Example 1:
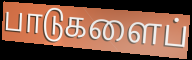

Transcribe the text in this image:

பாடுகளைப்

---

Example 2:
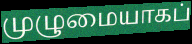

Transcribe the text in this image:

முழுமையாகப்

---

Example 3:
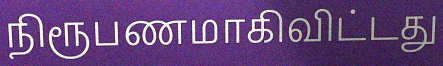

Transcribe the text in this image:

நிரூபணமாகிவிட்டது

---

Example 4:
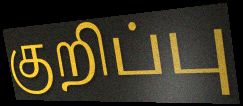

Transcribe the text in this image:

குறிப்பு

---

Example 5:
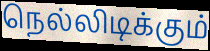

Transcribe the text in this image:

நெல்லிடிக்கும்